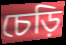
চেড়ি